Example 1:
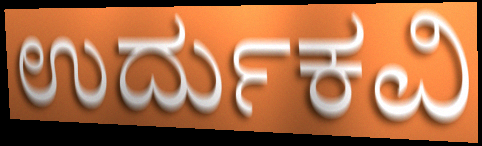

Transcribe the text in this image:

ಉರ್ದುಕವಿ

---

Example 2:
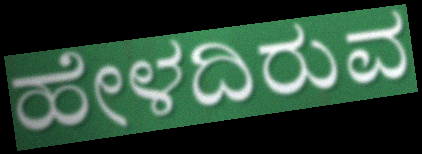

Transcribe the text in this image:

ಹೇಳದಿರುವ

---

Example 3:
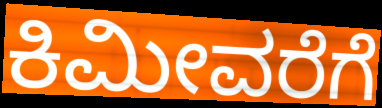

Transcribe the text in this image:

ಕಿಮೀವರೆಗೆ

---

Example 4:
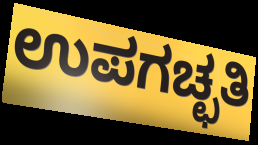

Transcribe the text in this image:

ಉಪಗಚ್ಛತಿ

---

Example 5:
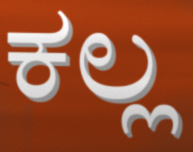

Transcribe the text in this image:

ಕಲ್ಲ